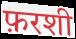
फ़रशी